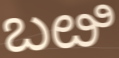
ಬೞಿ